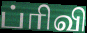
ப்ரிவி